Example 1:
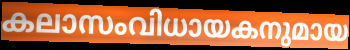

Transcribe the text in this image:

കലാസംവിധായകനുമായ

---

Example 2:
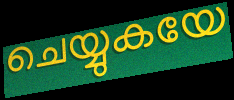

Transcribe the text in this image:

ചെയ്യുകയേ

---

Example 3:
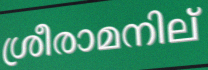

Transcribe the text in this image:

ശ്രീരാമനില്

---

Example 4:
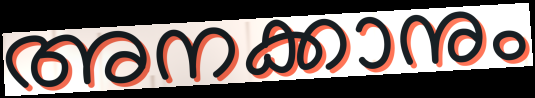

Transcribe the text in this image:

അനക്കാനും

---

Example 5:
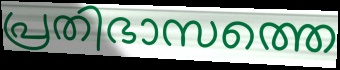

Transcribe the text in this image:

പ്രതിഭാസത്തെ